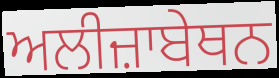
ਅਲੀਜ਼ਾਬੇਥਨ